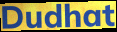
Dudhat